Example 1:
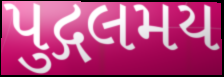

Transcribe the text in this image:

પુદ્ગલમય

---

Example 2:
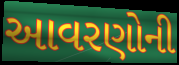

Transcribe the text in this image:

આવરણોની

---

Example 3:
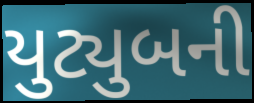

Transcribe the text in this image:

યુટ્યુબની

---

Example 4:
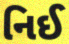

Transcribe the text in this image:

નિઈ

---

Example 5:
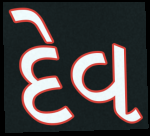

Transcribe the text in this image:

દેવ